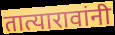
तात्यारावांनी